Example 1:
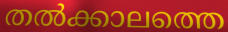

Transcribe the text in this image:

തൽക്കാലത്തെ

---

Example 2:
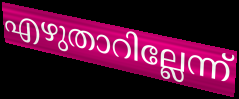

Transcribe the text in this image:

എഴുതാറില്ലേന്ന്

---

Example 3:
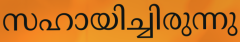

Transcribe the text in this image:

സഹായിച്ചിരുന്നു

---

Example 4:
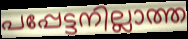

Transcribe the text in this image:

പപ്പേട്ടനില്ലാത്ത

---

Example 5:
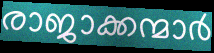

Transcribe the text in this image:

രാജാക്കന്മാർ